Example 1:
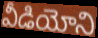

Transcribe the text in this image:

వీడియోని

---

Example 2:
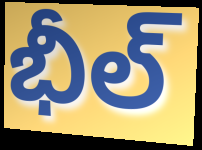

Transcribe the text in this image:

భీల్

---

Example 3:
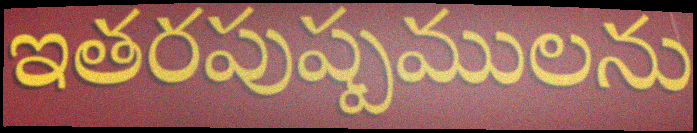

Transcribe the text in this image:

ఇతరపుష్పములను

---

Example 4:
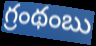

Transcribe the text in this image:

గ్రంథంబు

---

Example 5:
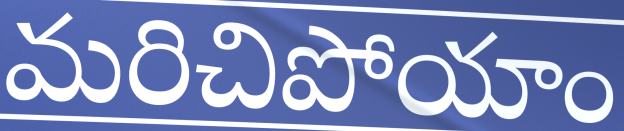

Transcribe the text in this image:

మరిచిపోయాం